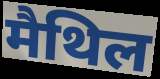
मैथिल